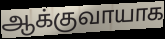
ஆக்குவாயாக